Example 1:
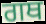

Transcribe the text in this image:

ਗਥ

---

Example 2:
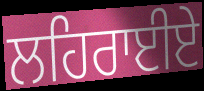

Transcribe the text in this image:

ਲਹਿਰਾਈਏ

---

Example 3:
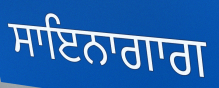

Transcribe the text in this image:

ਸਾਇਨਾਗਾਗ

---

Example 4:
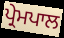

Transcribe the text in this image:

ਪ੍ਰੇਮਪਾਲ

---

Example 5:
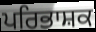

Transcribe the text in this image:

ਪਰਿਭਾਸ਼ਕ